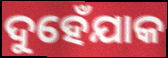
ଦୁହେଁଯାକ